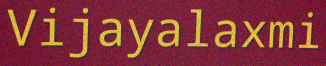
Vijayalaxmi